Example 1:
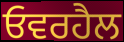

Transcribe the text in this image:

ਓਵਰਹੈਲ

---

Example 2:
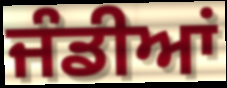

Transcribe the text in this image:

ਜੰਡੀਆਂ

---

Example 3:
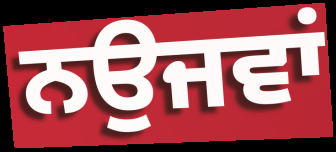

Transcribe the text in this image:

ਨਉਜਵਾਂ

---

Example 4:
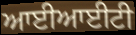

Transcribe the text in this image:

ਆਈਆਈਟੀ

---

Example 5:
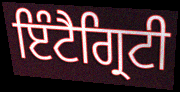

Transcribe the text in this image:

ਇੰਟੈਗ੍ਰਿਟੀ